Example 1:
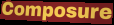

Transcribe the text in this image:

Composure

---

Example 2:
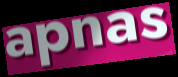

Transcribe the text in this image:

apnas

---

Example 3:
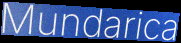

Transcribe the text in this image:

Mundarica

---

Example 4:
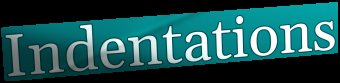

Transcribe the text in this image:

Indentations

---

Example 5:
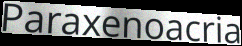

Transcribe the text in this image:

Paraxenoacria